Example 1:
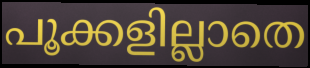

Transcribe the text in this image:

പൂക്കളില്ലാതെ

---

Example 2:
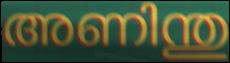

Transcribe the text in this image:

അണിന്തു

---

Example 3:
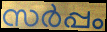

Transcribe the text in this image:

സർപ്പം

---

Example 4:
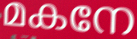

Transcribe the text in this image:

മകനേ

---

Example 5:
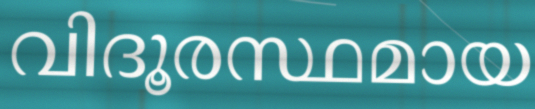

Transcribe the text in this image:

വിദൂരസ്ഥമായ